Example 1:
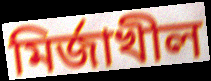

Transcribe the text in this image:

মির্জাখীল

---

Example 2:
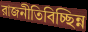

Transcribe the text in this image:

রাজনীতিবিচ্ছিন্ন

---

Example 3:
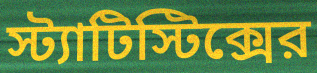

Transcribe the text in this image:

স্ট্যাটিস্টিক্সের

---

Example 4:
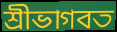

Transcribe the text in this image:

শ্রীভাগবত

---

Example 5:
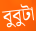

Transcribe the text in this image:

বুবুটা